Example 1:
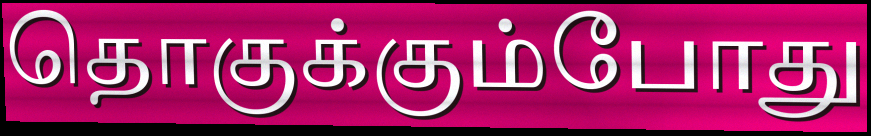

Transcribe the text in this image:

தொகுக்கும்போது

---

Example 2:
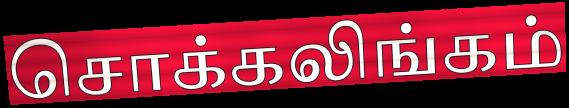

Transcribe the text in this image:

சொக்கலிங்கம்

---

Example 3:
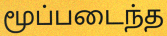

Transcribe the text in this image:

மூப்படைந்த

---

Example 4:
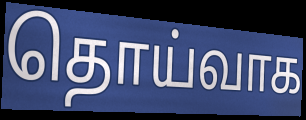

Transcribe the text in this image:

தொய்வாக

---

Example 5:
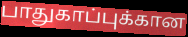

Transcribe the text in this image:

பாதுகாப்புக்கான